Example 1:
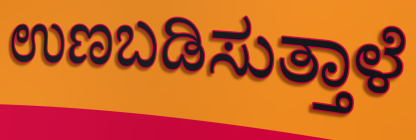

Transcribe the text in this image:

ಉಣಬಡಿಸುತ್ತಾಳೆ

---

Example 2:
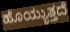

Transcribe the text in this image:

ಹೊಯ್ಯುತ್ತದೆ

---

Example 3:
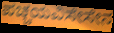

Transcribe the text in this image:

ಪಚ್ಚಯವಿಸೇಸೇನ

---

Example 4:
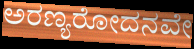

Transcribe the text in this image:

ಅರಣ್ಯರೋದನವೇ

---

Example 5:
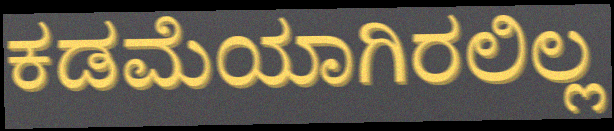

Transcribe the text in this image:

ಕಡಮೆಯಾಗಿರಲಿಲ್ಲ